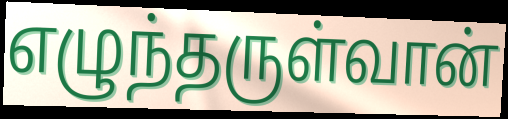
எழுந்தருள்வான்